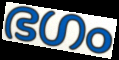
ഭഗം